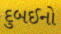
દુબઈનો